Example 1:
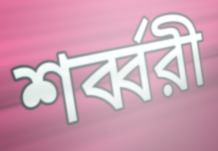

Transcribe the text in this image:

শর্ব্বরী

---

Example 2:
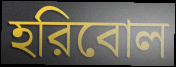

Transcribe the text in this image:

হরিবোল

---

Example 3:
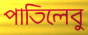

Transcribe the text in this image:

পাতিলেবু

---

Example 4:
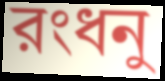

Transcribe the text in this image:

রংধনু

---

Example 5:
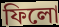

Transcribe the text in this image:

ফিলো